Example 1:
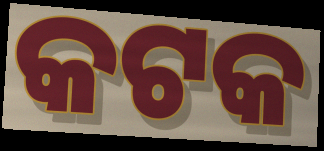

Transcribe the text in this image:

କଟକ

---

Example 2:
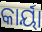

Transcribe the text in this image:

କାର୍ୟା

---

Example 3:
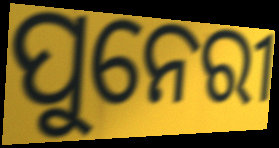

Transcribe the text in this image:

ପୁନେରୀ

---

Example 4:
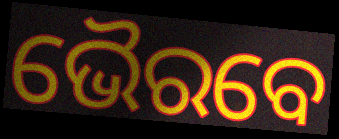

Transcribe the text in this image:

ଭୈରବେ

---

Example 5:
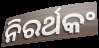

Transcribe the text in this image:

ନିରର୍ଥକଂ